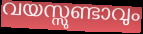
വയസ്സുണ്ടാവും